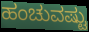
ಹಂಚುವಷ್ಟು